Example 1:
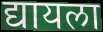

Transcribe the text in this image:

द्यायला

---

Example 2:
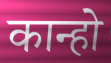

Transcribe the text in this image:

कान्हो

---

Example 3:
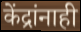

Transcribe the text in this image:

केंद्रांनाही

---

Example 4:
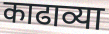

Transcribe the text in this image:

काढाव्या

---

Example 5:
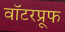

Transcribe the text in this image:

वॉटरप्रूफ